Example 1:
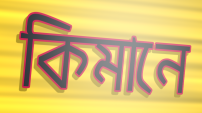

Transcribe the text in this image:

কিমানে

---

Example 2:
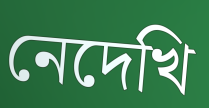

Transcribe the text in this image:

নেদেখি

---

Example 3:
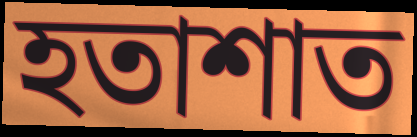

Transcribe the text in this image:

হতাশাত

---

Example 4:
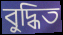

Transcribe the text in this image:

বুদ্ধিত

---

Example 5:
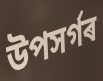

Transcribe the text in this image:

উপসৰ্গৰ